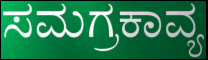
ಸಮಗ್ರಕಾವ್ಯ